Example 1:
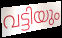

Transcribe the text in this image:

വട്ടിയും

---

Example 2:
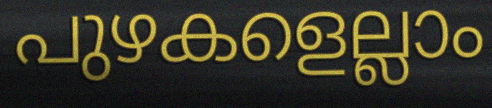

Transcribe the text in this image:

പുഴകളെല്ലാം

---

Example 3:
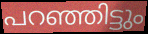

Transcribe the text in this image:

പറഞ്ഞിട്ടും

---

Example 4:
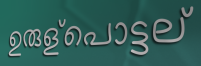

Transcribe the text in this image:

ഉരുള്പൊട്ടല്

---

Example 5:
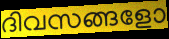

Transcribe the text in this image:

ദിവസങ്ങളോ